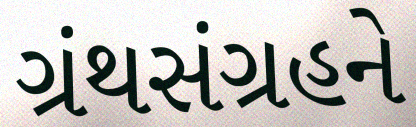
ગ્રંથસંગ્રહને